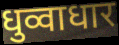
धुव्वाधार